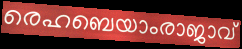
രെഹബെയാംരാജാവ്